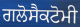
ਗਲੋਸੈਕਟੋਮੀ